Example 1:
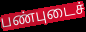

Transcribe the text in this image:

பண்புடைச்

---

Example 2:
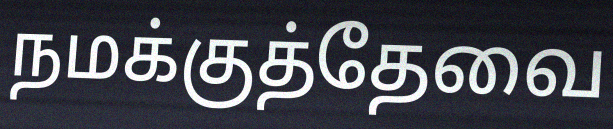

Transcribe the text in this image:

நமக்குத்தேவை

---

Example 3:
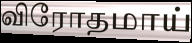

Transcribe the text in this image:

விரோதமாய்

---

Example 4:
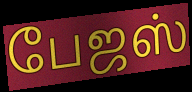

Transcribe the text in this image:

பேஜஸ்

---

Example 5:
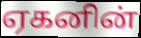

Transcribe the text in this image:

ஏகனின்